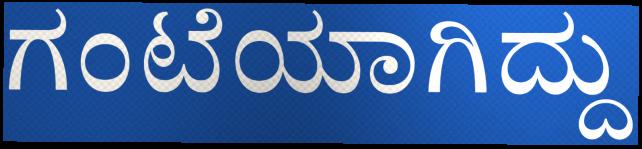
ಗಂಟೆಯಾಗಿದ್ದು